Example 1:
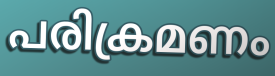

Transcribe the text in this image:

പരിക്രമണം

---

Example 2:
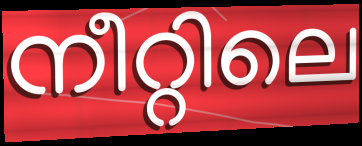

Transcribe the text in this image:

നീറ്റിലെ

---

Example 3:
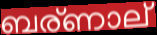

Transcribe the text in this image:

ബര്ണാല്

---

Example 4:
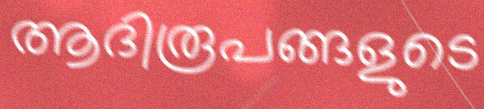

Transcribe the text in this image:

ആദിരൂപങ്ങളുടെ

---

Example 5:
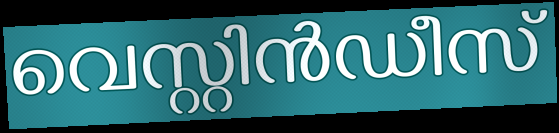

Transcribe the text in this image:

വെസ്റ്റിൻഡീസ്